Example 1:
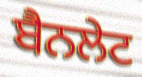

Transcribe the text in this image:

ਬੈਨਲੇਟ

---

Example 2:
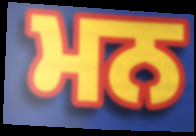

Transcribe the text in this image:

ਮਨ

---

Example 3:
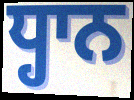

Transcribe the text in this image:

ਧ੍ਹਾਨ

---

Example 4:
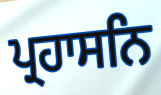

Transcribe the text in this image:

ਪ੍ਰਹਾਸਨਿ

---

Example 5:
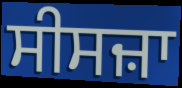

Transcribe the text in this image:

ਸੀਸਜ਼ਾ